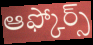
ఆఫ్కోర్స్